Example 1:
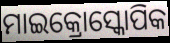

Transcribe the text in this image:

ମାଇକ୍ରୋସ୍କୋପିକ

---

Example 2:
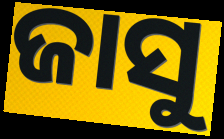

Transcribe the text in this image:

ଜାସୁ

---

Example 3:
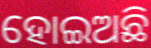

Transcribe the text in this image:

ହୋଇଅଛି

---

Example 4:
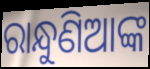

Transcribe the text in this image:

ରାନ୍ଧୁଣିଆଙ୍କ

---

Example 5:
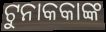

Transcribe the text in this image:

ଟୁନାକକାଙ୍କ